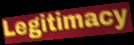
Legitimacy